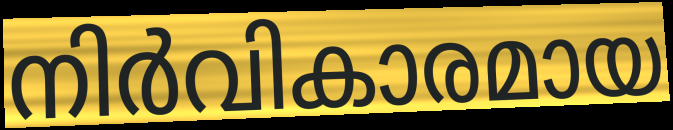
നിർവികാരമായ